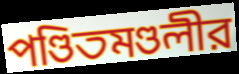
পণ্ডিতমণ্ডলীর